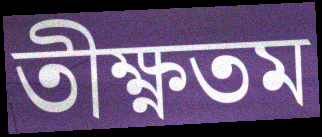
তীক্ষ্ণতম